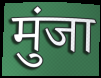
मुंजा